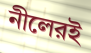
নীলেরই